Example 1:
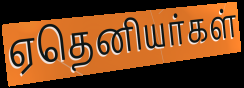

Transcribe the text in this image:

ஏதெனியர்கள்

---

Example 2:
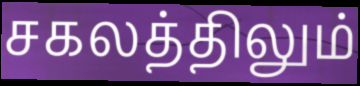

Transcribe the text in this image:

சகலத்திலும்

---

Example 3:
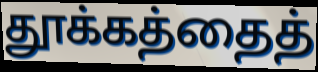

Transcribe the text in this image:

தூக்கத்தைத்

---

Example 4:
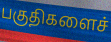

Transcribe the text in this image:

பகுதிகளைச்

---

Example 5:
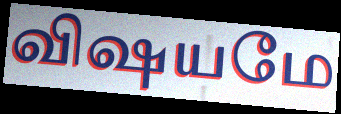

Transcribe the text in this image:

விஷயமே